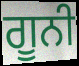
ਗੂਨੀ